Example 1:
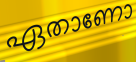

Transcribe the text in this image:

ഏതാണോ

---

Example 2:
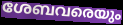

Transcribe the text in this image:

ശേബവരെയും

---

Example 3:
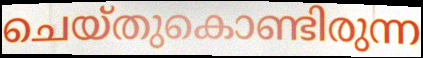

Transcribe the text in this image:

ചെയ്തുകൊണ്ടിരുന്ന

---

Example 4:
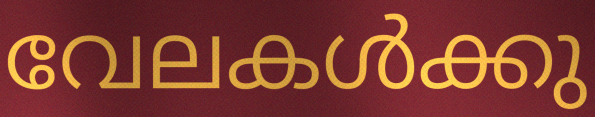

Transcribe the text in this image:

വേലകൾക്കു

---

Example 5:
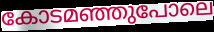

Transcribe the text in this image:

കോടമഞ്ഞുപോലെ